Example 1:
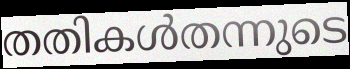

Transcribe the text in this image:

തതികൾതന്നുടെ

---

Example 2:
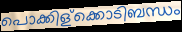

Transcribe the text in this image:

പൊക്കിള്ക്കൊടിബന്ധം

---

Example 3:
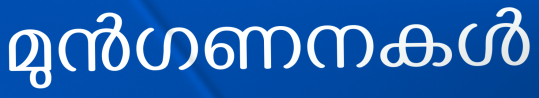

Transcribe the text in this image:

മുൻഗണനകൾ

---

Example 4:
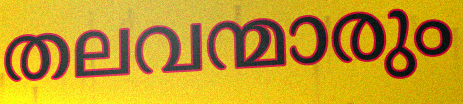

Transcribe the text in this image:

തലവന്മാരും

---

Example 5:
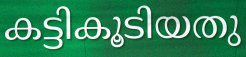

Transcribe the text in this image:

കട്ടികൂടിയതു